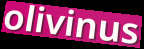
olivinus